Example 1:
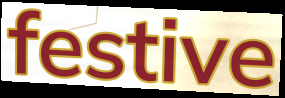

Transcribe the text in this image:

festive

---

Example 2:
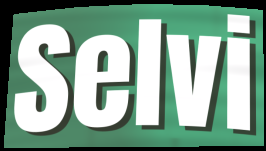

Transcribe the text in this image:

Selvi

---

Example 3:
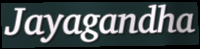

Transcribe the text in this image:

Jayagandha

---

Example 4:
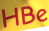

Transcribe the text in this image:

HBe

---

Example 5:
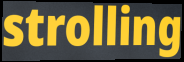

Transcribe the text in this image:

strolling